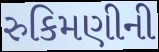
રુકિમણીની